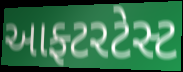
આફ્ટરટેસ્ટ